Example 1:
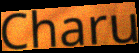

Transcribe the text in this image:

Charu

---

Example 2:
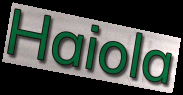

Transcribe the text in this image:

Haiola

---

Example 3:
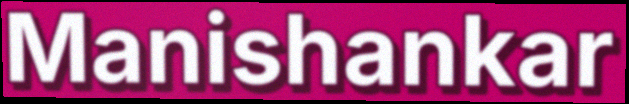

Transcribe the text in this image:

Manishankar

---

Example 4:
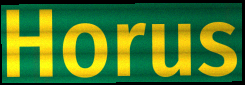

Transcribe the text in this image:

Horus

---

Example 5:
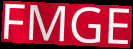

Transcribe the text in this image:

FMGE